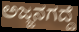
ಅಜ್ಜನಗದ್ದೆ